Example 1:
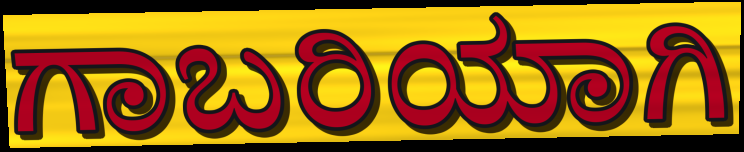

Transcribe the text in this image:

ಗಾಬರಿಯಾಗಿ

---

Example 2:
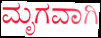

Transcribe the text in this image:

ಮೃಗವಾಗಿ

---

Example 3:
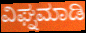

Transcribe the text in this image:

ವಿಘ್ನಮಾಡಿ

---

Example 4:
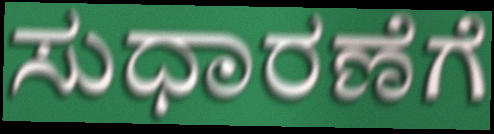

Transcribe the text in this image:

ಸುಧಾರಣೆಗೆ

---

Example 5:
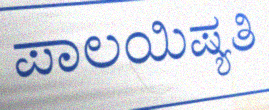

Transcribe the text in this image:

ಪಾಲಯಿಷ್ಯತಿ